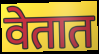
वेतात